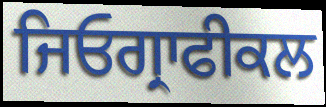
ਜਿਓਗ੍ਰਾਫੀਕਲ